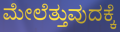
ಮೇಲೆತ್ತುವುದಕ್ಕೆ